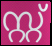
സ്റ്റ്